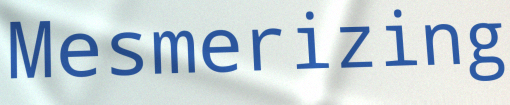
Mesmerizing